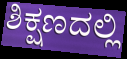
ಶಿಕ್ಷಣದಲ್ಲಿ